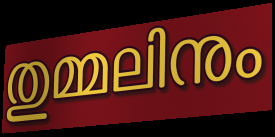
തുമ്മലിനും